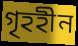
গৃহহীন